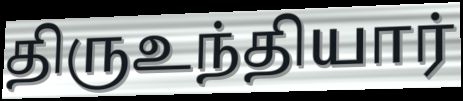
திருஉந்தியார்